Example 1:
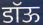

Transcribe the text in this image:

डॉऊ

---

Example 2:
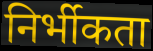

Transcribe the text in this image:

निर्भीकता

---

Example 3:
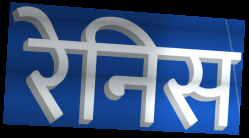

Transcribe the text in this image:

रेनिस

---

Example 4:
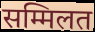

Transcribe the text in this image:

सम्मिलत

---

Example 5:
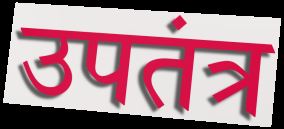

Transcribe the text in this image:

उपतंत्र